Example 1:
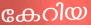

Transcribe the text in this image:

കേറിയ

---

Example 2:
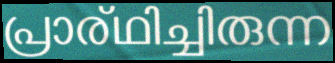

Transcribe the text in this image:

പ്രാര്ഥിച്ചിരുന്ന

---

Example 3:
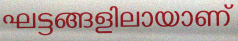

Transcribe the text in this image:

ഘട്ടങ്ങളിലായാണ്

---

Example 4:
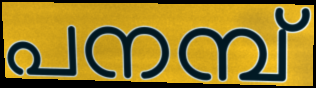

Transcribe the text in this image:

പനമ്പ്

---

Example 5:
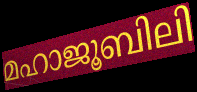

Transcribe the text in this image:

മഹാജൂബിലി